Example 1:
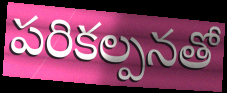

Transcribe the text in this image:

పరికల్పనతో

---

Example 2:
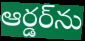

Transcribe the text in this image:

ఆర్డర్‌ను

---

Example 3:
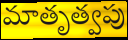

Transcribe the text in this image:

మాతృత్వపు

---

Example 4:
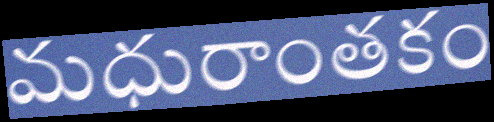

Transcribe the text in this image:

మధురాంతకం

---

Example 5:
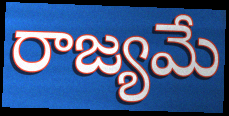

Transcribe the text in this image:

రాజ్యమే